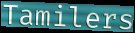
Tamilers